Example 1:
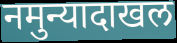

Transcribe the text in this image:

नमुन्यादाखल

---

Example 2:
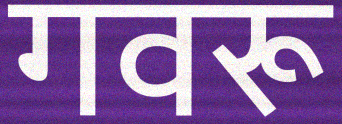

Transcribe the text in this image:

गवरू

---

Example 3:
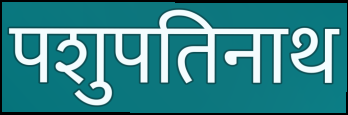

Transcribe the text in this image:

पशुपतिनाथ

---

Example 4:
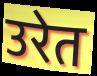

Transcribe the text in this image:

उरेत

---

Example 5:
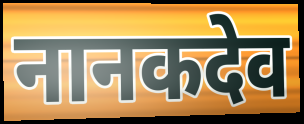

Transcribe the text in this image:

नानकदेव